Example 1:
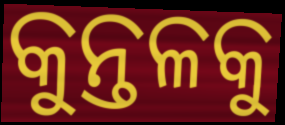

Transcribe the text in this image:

କୁନ୍ତଳକୁ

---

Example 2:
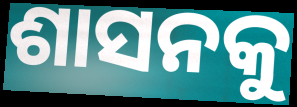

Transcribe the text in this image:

ଶାସନକୁ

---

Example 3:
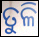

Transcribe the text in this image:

ତୁଳି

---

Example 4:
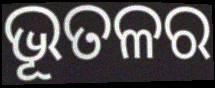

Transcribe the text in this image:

ଭୂତଳର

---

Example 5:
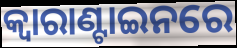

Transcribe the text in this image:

କ୍ବାରାଣ୍ଟାଇନରେ